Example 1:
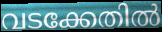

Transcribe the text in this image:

വടക്കേതിൽ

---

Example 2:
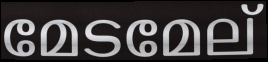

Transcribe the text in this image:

മേടമേല്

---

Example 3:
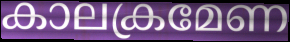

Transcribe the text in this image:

കാലക്രമേണ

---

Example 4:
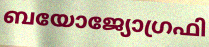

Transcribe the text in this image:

ബയോജ്യോഗ്രഫി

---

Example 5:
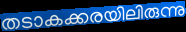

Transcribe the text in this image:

തടാകക്കരയിലിരുന്നു